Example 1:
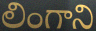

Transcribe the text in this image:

లింగాని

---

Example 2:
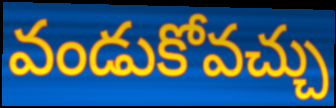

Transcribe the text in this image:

వండుకోవచ్చు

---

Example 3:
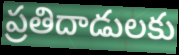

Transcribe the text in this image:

ప్రతిదాడులకు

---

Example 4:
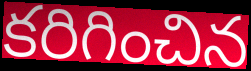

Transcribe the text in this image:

కరిగించిన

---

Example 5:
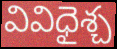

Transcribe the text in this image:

వివిధైశ్చ